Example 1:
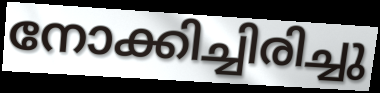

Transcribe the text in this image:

നോക്കിച്ചിരിച്ചു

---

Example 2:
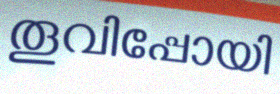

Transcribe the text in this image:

തൂവിപ്പോയി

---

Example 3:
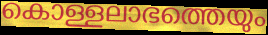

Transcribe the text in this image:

കൊള്ളലാഭത്തെയും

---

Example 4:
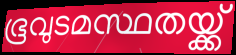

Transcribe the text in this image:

ഭൂവുടമസ്ഥതയ്ക്ക്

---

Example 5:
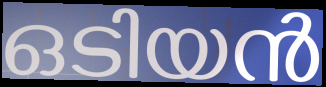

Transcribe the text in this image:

ഒടിയൻ